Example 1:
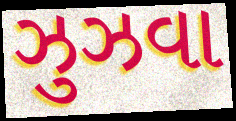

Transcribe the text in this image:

ઝુઝવા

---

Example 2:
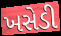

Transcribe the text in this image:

ખસેડી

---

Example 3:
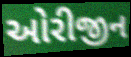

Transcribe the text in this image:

ઓરીજીન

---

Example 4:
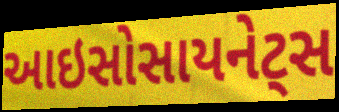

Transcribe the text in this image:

આઇસોસાયનેટ્સ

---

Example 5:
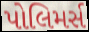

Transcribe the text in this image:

પોલિમર્સ